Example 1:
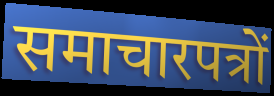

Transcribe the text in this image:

समाचारपत्रों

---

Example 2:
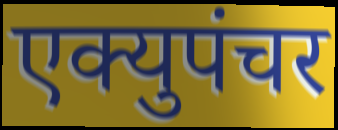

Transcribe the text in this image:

एक्युपंचर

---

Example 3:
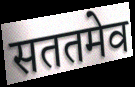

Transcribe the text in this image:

सततमेव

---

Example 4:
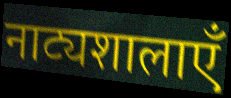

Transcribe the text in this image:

नाट्यशालाएँ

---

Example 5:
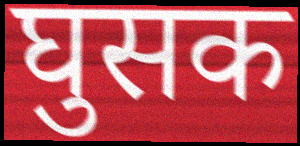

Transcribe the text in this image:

घुसक